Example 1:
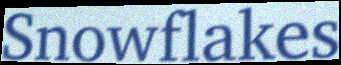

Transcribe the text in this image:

Snowflakes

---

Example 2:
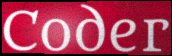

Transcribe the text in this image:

Coder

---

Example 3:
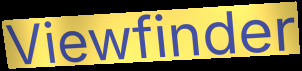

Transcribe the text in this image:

Viewfinder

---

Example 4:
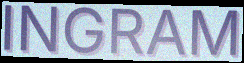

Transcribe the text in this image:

INGRAM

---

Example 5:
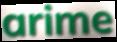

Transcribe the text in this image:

arime